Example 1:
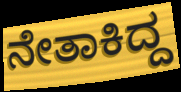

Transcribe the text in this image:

ನೇತಾಕಿದ್ದ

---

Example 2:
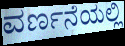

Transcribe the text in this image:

ವರ್ಣನೆಯಲ್ಲಿ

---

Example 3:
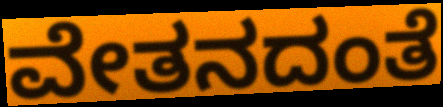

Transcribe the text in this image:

ವೇತನದಂತೆ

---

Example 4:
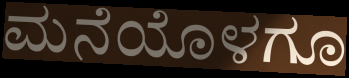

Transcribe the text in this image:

ಮನೆಯೊಳಗೂ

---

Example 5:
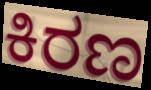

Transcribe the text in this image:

ಕಿರಣ